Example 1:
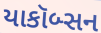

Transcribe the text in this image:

યાકૉબ્સન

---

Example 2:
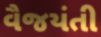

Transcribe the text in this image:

વૈજયંતી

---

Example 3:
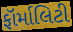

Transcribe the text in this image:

ફૉર્માલિટી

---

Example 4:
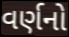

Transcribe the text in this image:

વર્ણનો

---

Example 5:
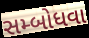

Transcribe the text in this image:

સમ્બોધવા